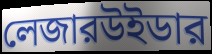
লেজারউইডার